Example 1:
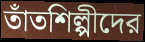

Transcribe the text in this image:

তাঁতশিল্পীদের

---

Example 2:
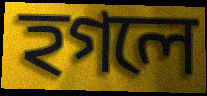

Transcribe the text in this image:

হগলে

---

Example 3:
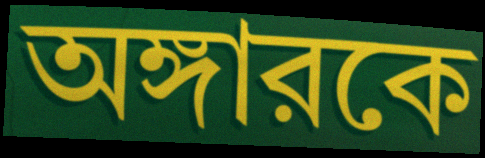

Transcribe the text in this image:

অঙ্গারকে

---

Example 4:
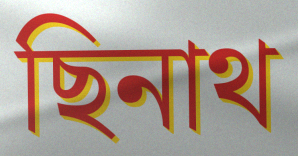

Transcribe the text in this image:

ছিনাথ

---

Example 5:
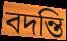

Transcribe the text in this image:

বদন্তি